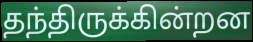
தந்திருக்கின்றன